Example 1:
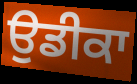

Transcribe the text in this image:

ਉਡੀਕਾ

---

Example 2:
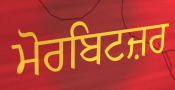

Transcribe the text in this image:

ਮੋਰਬਿਟਜ਼ਰ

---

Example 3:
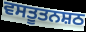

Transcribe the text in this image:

ਵਸਤੂਤਨਸ਼ਠ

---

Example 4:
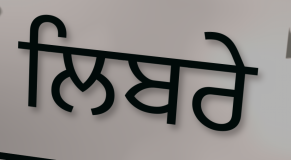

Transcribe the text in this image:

ਲਿਬਰੇ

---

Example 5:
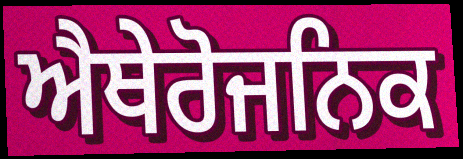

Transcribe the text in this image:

ਐਥੇਰੋਜਨਿਕ